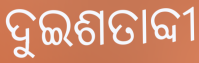
ଦୁଇଶତାବ୍ଦୀ